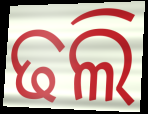
ଢଲି